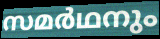
സമർഥനും